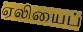
ஏலியைப்